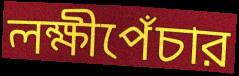
লক্ষীপেঁচার